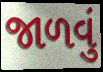
જાળવું